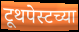
टूथपेस्टच्या